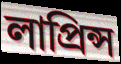
লাপ্রিন্স